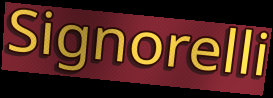
Signorelli